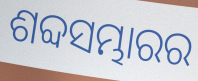
ଶବ୍ଦସମ୍ଭାରର